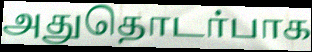
அதுதொடர்பாக